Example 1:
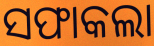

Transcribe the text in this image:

ସଫାକଲା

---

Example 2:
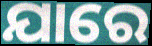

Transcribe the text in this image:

ଯାରେ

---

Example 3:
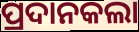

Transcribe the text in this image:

ପ୍ରଦାନକଲା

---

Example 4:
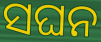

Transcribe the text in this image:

ସଘନ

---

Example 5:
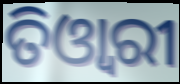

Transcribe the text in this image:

ତିଓ୍ଵାରୀ